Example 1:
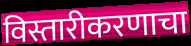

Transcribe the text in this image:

विस्तारीकरणाचा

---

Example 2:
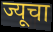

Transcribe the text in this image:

ज्यूचा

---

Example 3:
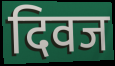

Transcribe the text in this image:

दिवज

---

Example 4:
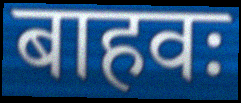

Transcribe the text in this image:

बाहवः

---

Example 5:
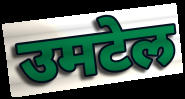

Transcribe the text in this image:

उमटेल